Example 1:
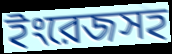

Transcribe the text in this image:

ইংরেজসহ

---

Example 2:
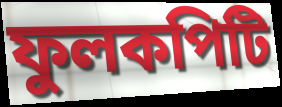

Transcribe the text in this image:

ফুলকপিটি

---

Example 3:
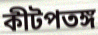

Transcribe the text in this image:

কীটপতঙ্গ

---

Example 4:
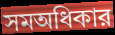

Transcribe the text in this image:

সমঅধিকার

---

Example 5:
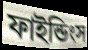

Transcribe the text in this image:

ফাইন্ডিংস